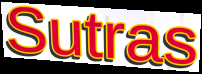
Sutras